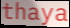
thaya